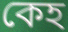
কেহ